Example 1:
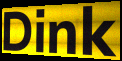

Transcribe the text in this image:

Dink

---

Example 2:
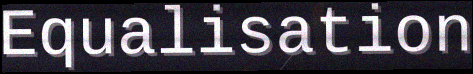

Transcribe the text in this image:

Equalisation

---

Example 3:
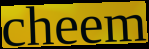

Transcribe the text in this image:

cheem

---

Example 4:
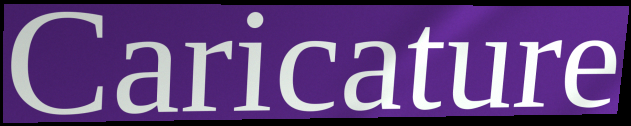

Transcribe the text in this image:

Caricature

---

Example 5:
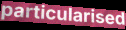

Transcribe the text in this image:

particularised